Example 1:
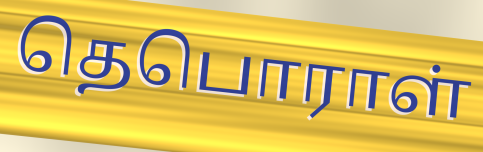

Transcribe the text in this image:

தெபொராள்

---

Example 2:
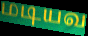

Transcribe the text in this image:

மடியவ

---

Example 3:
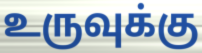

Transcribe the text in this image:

உருவுக்கு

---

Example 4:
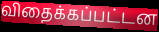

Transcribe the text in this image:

விதைக்கப்பட்டன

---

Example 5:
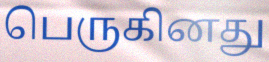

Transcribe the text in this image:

பெருகினது